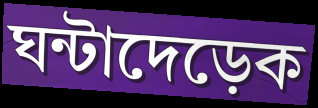
ঘন্টাদেড়েক